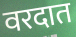
वरदात